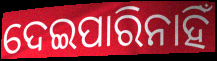
ଦେଇପାରିନାହିଁ